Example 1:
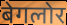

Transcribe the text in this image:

बेगलोर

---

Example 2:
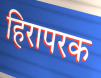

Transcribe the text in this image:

हिरापरक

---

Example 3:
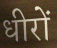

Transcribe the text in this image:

धीरों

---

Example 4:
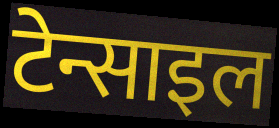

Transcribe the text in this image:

टेन्साइल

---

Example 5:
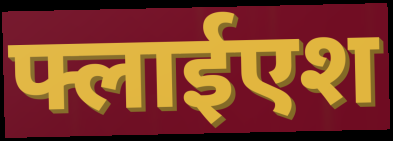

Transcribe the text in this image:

फ्लाईएश